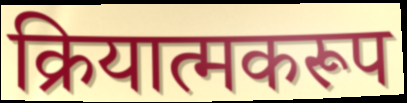
क्रियात्मकरूप